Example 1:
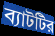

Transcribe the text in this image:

ব্যাটটির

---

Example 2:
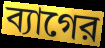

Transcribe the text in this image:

ব্যাগের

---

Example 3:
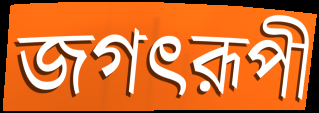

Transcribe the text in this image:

জগৎরূপী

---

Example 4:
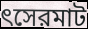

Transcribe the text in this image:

ৎসেরমাট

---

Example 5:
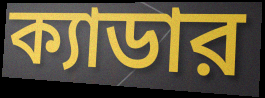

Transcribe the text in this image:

ক্যাডার